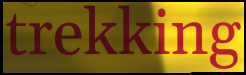
trekking